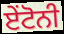
ਏਂਟੋਨੀ